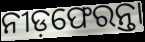
ନୀଡ଼ଫେରନ୍ତା